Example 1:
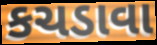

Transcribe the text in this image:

કચડાવા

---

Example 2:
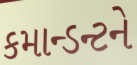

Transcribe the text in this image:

કમાન્ડન્ટને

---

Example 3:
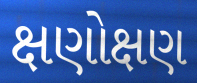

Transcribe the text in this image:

ક્ષણોક્ષણ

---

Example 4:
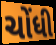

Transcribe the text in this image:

ચોંધી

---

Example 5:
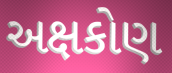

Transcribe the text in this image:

અક્ષકોણ